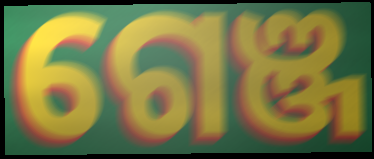
ଗେଞ୍ଜ